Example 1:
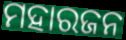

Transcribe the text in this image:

ମହାରଜନ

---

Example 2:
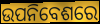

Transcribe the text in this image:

ଉପନିବେଶରେ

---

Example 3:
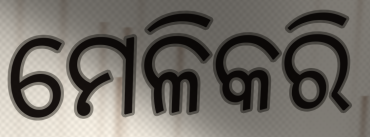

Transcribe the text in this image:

ମେଳିକରି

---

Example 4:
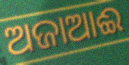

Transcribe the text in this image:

ଅଜାଆଈ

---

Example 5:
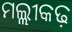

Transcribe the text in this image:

ମଲ୍ଲୀକଢ଼